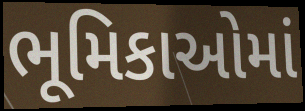
ભૂમિકાઓમાં